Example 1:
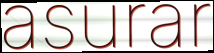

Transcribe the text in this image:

asurar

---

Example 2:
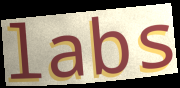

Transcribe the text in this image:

labs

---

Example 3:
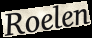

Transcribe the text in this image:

Roelen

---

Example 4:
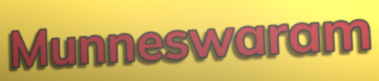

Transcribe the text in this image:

Munneswaram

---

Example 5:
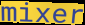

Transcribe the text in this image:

mixer